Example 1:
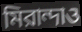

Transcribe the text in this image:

মিরান্দাও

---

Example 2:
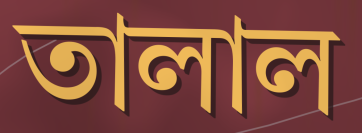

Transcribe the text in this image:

তালাল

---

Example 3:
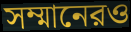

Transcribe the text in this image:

সম্মানেরও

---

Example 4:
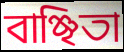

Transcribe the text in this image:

বাঞ্ছিতা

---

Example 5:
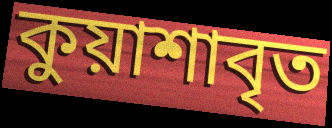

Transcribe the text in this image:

কুয়াশাবৃত